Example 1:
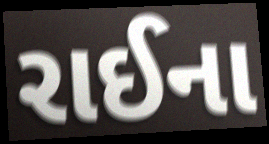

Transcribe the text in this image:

રાઈના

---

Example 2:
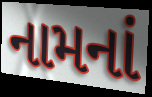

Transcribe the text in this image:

નામનાં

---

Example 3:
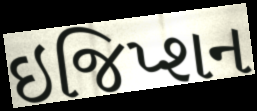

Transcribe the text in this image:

ઇજિપ્શન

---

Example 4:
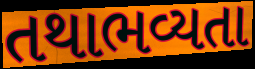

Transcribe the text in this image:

તથાભવ્યતા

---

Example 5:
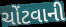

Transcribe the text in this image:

ચોંટવાની